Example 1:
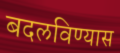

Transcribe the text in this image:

बदलविण्यास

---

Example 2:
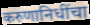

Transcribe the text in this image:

करुणानिधींचा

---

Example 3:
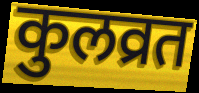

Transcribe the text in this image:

कुलव्रत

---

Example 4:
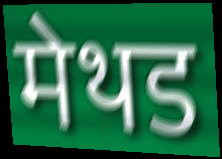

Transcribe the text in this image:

मेथड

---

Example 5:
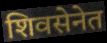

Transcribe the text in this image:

शिवसेनेत